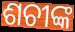
ଶଚୀଙ୍କ